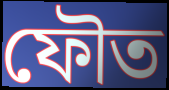
ফৌত